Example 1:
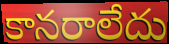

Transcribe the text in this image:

కానరాలేదు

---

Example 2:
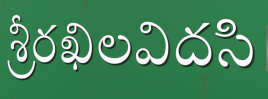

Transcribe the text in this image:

శ్రీరఖిలవిదసి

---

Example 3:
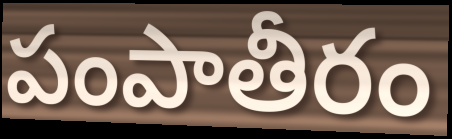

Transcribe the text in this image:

పంపాతీరం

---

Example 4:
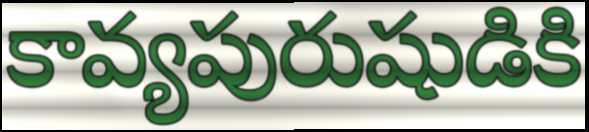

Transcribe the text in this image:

కావ్యపురుషుడికి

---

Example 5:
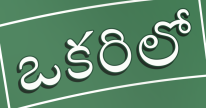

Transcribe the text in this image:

ఒకరిలో